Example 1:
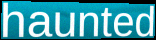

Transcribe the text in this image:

haunted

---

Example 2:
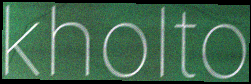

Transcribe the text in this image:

kholto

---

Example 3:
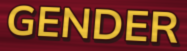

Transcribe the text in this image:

GENDER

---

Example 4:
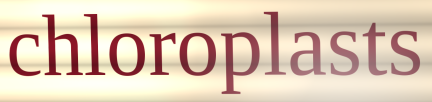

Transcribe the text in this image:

chloroplasts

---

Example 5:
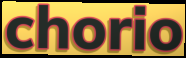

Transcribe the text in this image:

chorio